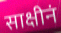
साक्षीनं